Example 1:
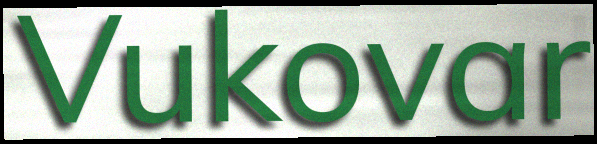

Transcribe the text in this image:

Vukovar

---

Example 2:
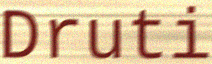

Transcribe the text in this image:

Druti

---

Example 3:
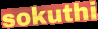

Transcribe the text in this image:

sokuthi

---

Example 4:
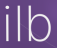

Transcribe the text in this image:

ilb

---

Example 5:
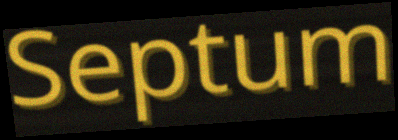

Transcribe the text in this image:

Septum